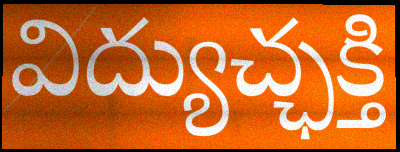
విద్యుచ్ఛక్తి